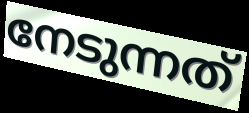
നേടുന്നത്